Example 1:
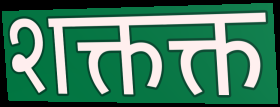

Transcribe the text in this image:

शक्तक्त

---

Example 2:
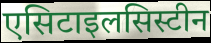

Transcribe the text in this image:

एसिटाइलसिस्टीन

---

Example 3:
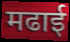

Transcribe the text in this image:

मढाई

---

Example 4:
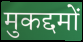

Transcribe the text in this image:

मुकद्दमों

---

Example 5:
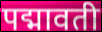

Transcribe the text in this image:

पद्मावती